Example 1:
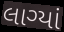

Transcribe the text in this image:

લાગ્યાં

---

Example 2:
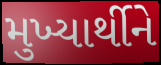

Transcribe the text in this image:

મુખ્યાર્થીને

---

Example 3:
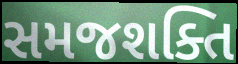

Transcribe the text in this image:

સમજશક્તિ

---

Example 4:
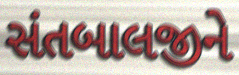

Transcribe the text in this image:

સંતબાલજીને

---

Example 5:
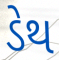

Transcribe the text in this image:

ડેથ